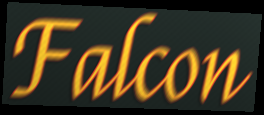
Falcon